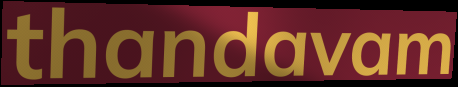
thandavam